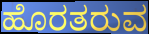
ಹೊರತರುವ